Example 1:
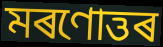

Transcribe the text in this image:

মৰণোত্তৰ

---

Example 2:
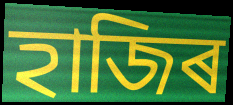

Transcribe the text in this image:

হাজিৰ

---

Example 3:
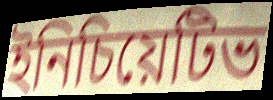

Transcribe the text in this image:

ইনিচিয়েটিভ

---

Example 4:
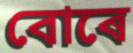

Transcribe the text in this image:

বোৰে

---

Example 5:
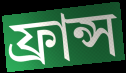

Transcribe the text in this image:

ফ্ৰান্স